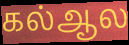
கல்ஆல